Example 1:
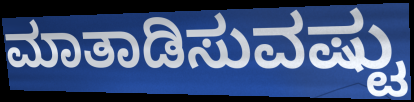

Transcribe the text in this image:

ಮಾತಾಡಿಸುವಷ್ಟು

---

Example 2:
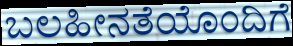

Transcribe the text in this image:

ಬಲಹೀನತೆಯೊಂದಿಗೆ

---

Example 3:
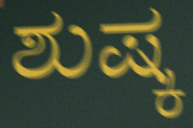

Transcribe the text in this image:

ಶುಷ್ಕ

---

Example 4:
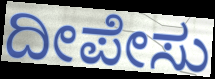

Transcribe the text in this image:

ದೀಪೇಸು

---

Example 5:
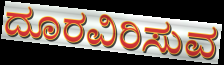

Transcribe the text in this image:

ದೂರವಿರಿಸುವ